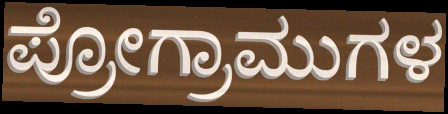
ಪ್ರೋಗ್ರಾಮುಗಳ